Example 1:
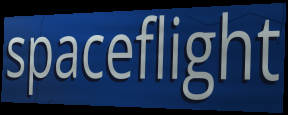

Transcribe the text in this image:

spaceflight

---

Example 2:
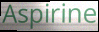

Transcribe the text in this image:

Aspirine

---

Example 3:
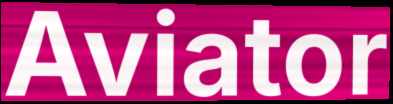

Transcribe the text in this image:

Aviator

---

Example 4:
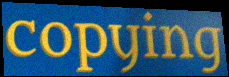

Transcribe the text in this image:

copying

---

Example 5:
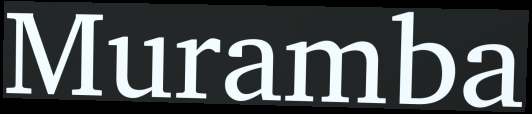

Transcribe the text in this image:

Muramba